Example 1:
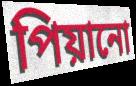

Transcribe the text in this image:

পিয়ানো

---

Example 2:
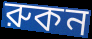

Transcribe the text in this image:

ৰুকন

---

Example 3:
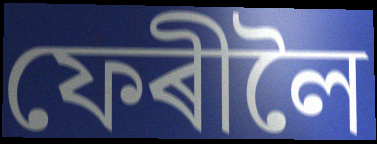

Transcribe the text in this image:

ফেৰীলৈ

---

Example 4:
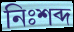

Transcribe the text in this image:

নিঃশব্দ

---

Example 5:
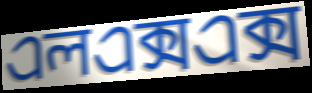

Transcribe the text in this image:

এলএক্সএক্স